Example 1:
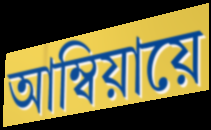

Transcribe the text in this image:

আম্বিয়ায়ে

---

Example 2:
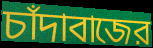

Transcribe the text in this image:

চাঁদাবাজের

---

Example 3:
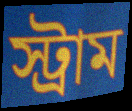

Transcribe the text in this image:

স্ট্রাম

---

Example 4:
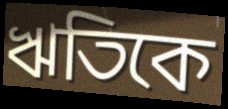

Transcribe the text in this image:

ঋতিকে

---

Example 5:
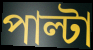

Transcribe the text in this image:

পাল্টা